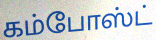
கம்போஸ்ட்